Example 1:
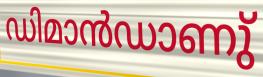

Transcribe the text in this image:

ഡിമാൻഡാണു്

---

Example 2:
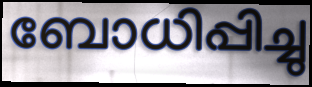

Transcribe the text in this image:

ബോധിപ്പിച്ചു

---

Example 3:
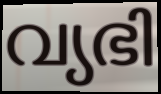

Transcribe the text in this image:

വ്യഭി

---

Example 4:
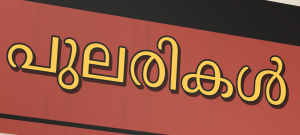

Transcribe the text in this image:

പുലരികൾ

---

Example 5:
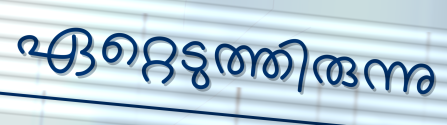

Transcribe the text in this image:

ഏറ്റെടുത്തിരുന്നു